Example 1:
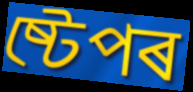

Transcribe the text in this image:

ষ্টেপৰ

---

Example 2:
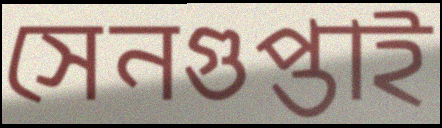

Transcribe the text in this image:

সেনগুপ্তাই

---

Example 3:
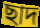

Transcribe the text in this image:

ছাদ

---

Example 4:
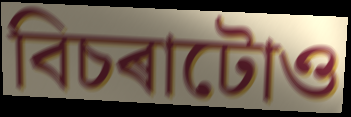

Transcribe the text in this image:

বিচৰাটোও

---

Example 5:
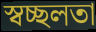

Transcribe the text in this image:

স্বচ্ছলতা